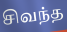
சிவந்த